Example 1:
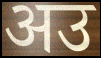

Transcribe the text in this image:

अउ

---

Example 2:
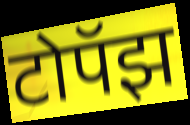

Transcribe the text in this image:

टोपॅझ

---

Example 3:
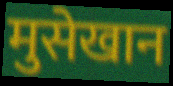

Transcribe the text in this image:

मुसेखान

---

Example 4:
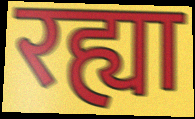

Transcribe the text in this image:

रह्या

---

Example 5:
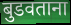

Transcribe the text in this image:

बुडवताना